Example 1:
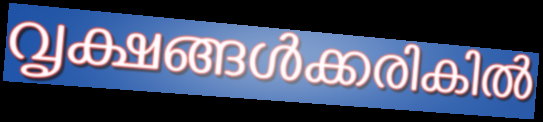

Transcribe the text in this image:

വൃക്ഷങ്ങൾക്കരികിൽ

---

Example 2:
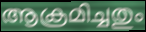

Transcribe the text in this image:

ആക്രമിച്ചതും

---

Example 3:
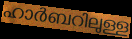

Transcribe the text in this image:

ഹാർബറിലുള്ള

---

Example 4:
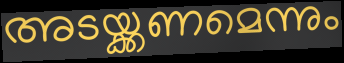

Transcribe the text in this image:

അടയ്ക്കണമെന്നും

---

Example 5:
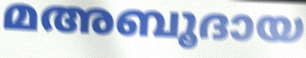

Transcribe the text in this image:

മഅബൂദായ